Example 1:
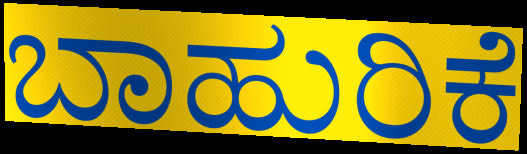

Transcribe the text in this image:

ಬಾಹುರಿಕೆ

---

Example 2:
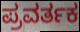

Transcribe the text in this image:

ಪ್ರವರ್ತಕ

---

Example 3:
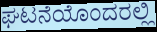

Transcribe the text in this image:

ಘಟನೆಯೊಂದರಲ್ಲಿ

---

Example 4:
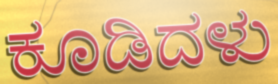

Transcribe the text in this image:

ಕೂಡಿದಳು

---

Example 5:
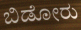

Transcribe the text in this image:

ಬಿಡೋರು